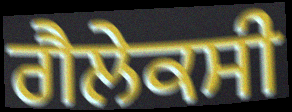
ਗੈਲੇਕਸੀ